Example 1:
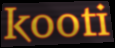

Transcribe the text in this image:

kooti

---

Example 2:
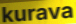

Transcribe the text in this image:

kurava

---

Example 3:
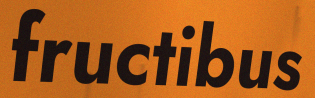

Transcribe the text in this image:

fructibus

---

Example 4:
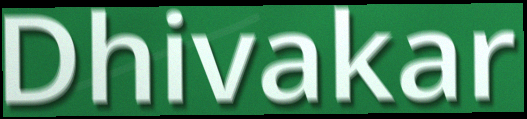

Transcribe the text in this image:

Dhivakar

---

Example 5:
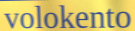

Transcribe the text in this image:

volokento